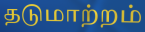
தடுமாற்றம்